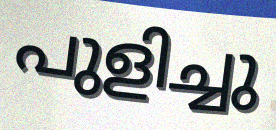
പുളിച്ചു